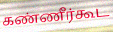
கண்ணீர்கூட